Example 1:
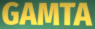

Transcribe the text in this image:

GAMTA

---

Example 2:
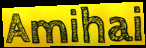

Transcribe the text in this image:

Amihai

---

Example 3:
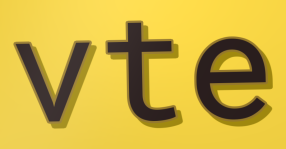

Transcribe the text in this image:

vte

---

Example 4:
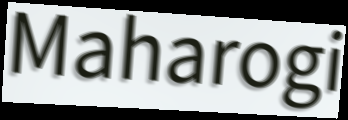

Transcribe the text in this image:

Maharogi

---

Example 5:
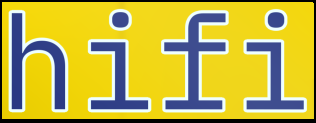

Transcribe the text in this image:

hifi